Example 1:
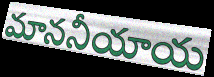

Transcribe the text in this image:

మాననీయాయ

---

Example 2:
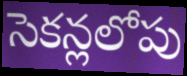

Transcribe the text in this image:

సెకన్లలోపు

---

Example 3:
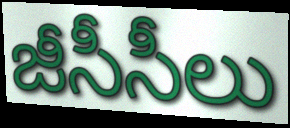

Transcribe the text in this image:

జీసీసీలు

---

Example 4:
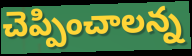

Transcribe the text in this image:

చెప్పించాలన్న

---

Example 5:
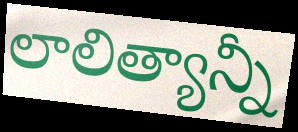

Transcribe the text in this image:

లాలిత్యాన్నీ